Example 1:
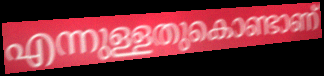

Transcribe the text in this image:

എന്നുള്ളതുകൊണ്ടാണ്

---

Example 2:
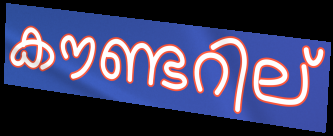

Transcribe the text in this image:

കൗണ്ടറില്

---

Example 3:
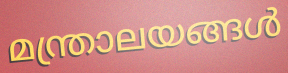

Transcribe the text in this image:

മന്ത്രാലയങ്ങൾ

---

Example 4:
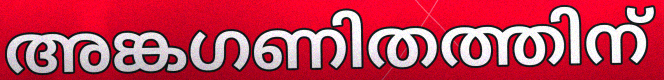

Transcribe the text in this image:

അങ്കഗണിതത്തിന്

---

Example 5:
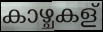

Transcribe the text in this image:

കാഴ്ചകള്